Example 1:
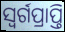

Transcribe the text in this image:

ସ୍ୱର୍ଗପ୍ରାପ୍ତି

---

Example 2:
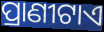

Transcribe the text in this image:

ପ୍ରାଣୀଟାଏ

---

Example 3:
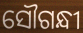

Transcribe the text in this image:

ସୌଗନ୍ଧୀ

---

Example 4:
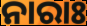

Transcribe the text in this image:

ନାରାଃ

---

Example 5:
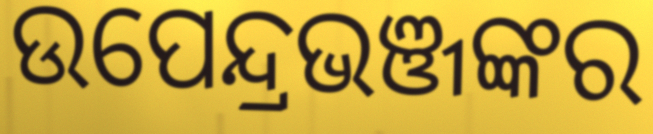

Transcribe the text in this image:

ଉପେନ୍ଦ୍ରଭଞ୍ଜଙ୍କର